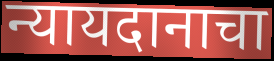
न्यायदानाचा